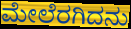
ಮೇಲೆರಗಿದನು